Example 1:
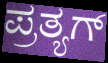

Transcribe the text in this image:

ಪ್ರತ್ಯಗ್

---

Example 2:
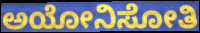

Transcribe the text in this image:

ಅಯೋನಿಸೋತಿ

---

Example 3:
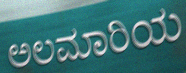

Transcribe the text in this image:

ಅಲಮಾರಿಯ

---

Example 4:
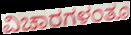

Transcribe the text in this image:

ವಿಚಾರಗಳಂತೂ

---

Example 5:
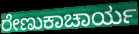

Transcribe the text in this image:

ರೇಣುಕಾಚಾರ್ಯ